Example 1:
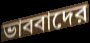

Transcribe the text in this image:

ভাববাদের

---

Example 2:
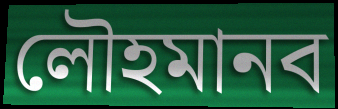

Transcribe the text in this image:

লৌহমানব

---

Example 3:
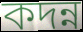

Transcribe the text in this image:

কদন্ন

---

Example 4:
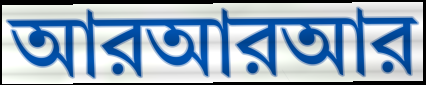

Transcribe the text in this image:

আরআরআর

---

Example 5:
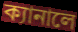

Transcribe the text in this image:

ক্যানালে